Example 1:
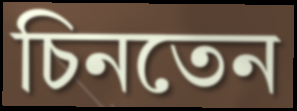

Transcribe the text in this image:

চিনতেন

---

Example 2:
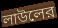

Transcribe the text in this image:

লাউলের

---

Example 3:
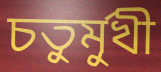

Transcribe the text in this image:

চতুর্মুখী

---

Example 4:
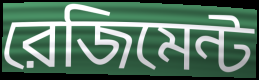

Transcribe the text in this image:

রেজিমেন্ট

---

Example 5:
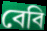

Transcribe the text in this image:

বেবি